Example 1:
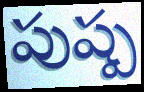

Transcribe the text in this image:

పుష్ప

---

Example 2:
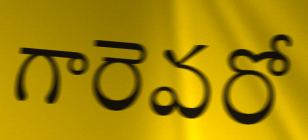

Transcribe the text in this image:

గారెవరో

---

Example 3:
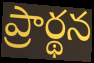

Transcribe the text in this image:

ప్రార్థన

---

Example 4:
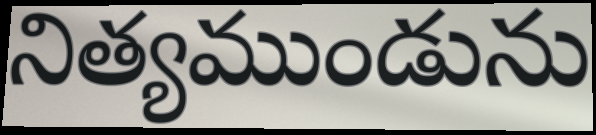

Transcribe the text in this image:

నిత్యముండును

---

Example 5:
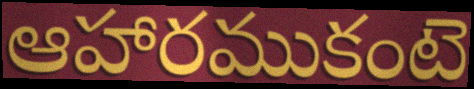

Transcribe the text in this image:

ఆహారముకంటె